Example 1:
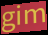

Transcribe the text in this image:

gim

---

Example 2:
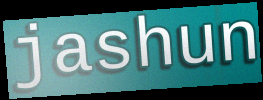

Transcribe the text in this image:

jashun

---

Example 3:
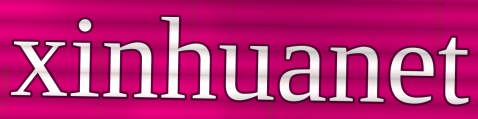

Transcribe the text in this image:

xinhuanet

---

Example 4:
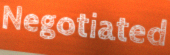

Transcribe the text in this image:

Negotiated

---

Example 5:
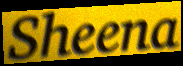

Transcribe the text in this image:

Sheena